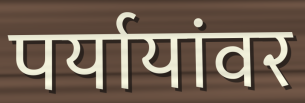
पर्यायांवर